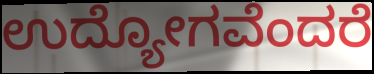
ಉದ್ಯೋಗವೆಂದರೆ